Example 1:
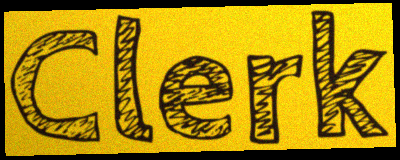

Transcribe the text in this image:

Clerk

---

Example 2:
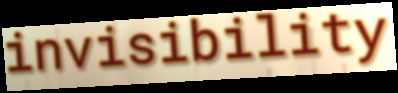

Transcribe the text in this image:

invisibility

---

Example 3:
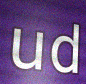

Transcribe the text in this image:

ud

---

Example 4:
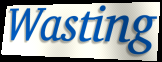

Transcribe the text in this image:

Wasting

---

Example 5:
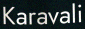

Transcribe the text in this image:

Karavali